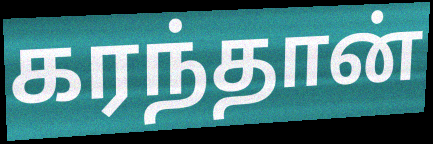
கரந்தான்